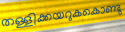
തള്ളിക്കയറുകകൊണ്ടു